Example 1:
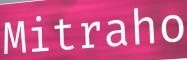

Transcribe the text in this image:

Mitraho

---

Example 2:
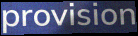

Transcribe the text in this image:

provision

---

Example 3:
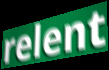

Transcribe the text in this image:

relent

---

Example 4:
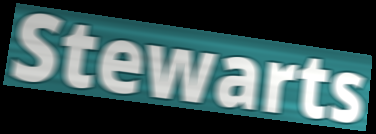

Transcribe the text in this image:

Stewarts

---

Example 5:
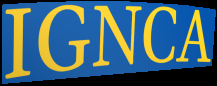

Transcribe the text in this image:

IGNCA